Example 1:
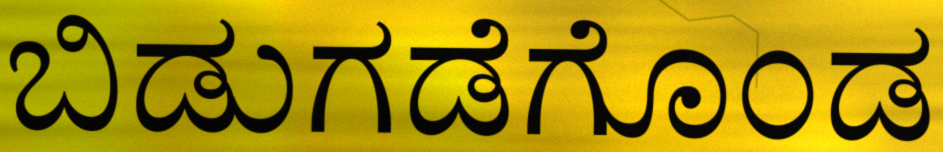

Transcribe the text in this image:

ಬಿಡುಗಡೆಗೊಂಡ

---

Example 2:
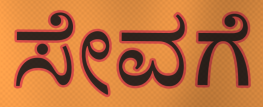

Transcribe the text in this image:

ಸೇವಗೆ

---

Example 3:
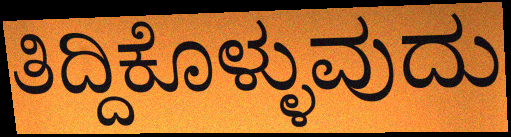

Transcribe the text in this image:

ತಿದ್ದಿಕೊಳ್ಳುವುದು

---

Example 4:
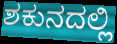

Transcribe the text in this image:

ಶಕುನದಲ್ಲಿ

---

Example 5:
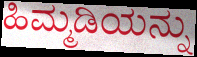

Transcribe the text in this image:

ಹಿಮ್ಮಡಿಯನ್ನು